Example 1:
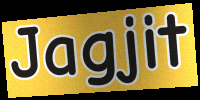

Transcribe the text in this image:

Jagjit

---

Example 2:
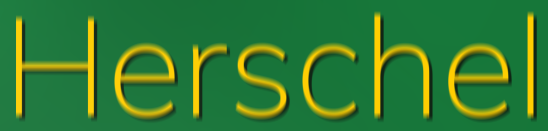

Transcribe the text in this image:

Herschel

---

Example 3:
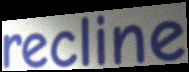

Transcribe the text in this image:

recline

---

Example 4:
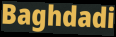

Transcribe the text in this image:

Baghdadi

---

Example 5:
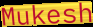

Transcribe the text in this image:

Mukesh